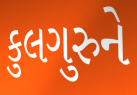
કુલગુરુને